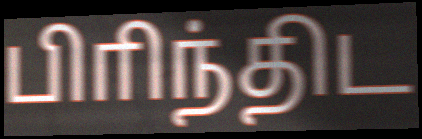
பிரிந்திட